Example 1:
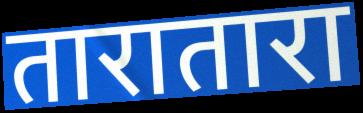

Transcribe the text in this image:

तारातारा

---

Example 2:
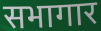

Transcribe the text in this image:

सभागार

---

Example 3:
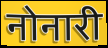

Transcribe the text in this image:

नोनारी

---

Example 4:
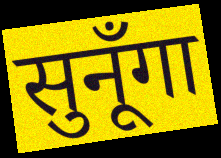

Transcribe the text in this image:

सुनूँगा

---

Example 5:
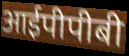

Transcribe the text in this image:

आईपीपीबी